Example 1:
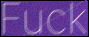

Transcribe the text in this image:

Fuck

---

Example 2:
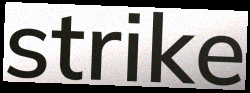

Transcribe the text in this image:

strike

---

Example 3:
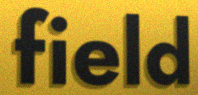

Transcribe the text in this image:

field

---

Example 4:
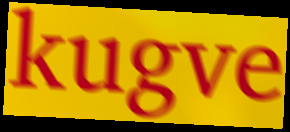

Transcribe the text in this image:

kugve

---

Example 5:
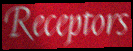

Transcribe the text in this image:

Receptors